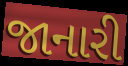
જાનારી